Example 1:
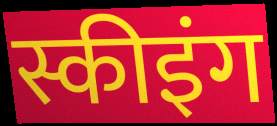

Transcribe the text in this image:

स्कीइंग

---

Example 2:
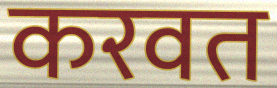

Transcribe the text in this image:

करवत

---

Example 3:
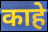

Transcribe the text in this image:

काहे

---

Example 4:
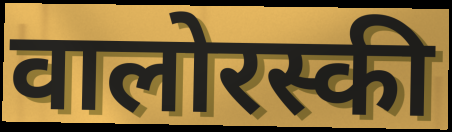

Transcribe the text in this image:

वालोरस्की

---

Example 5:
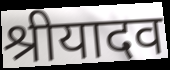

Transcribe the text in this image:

श्रीयादव